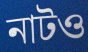
নাটও